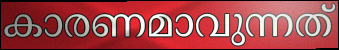
കാരണമാവുന്നത്